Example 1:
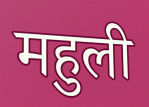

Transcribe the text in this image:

महुली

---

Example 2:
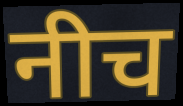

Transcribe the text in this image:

नीच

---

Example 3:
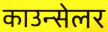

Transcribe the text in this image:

काउन्सेलर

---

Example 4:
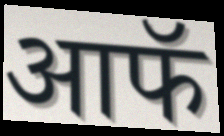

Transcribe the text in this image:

आफॅ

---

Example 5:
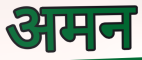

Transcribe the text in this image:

अमन